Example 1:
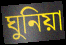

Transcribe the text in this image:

ঘুনিয়া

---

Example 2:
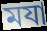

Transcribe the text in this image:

মযা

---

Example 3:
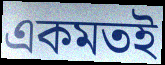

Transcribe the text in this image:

একমতই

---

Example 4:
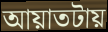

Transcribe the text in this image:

আয়াতটায়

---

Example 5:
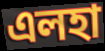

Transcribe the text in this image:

এলহা